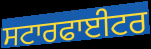
ਸਟਾਰਫਾਈਟਰ